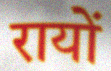
रायों